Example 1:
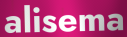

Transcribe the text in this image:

alisema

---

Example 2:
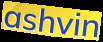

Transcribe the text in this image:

ashvin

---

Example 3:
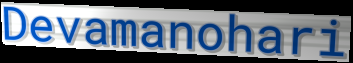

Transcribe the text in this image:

Devamanohari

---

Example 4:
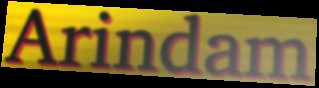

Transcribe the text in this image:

Arindam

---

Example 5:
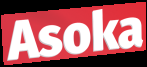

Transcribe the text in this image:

Asoka